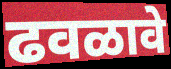
ढवळावे